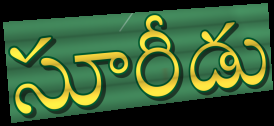
సూరీడు